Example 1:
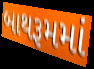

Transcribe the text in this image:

બાથરૂમમાં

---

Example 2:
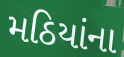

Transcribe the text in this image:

મઠિયાંના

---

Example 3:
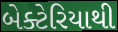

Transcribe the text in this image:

બેક્ટેરિયાથી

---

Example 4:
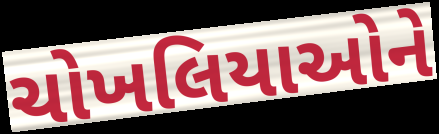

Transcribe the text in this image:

ચોખલિયાઓને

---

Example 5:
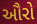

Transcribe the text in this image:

ઔરો